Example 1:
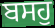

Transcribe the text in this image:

ਬਸਹੁ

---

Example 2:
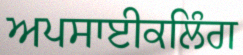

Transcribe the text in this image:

ਅਪਸਾਈਕਲਿੰਗ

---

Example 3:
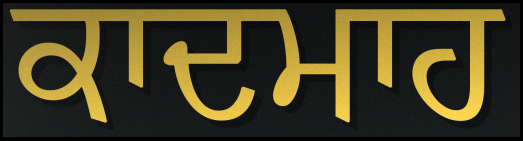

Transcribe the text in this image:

ਕਾਦਮਾਹ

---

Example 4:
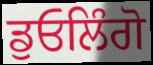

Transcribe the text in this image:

ਡੁਓਲਿੰਗੋ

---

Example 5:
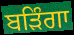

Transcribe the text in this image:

ਬੜਿੰਗਾ